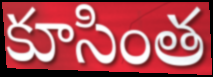
కూసింత